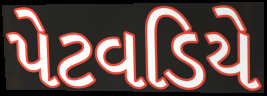
પેટવડિયે